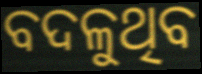
ବଦଳୁଥିବ